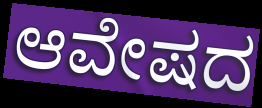
ಆವೇಷದ